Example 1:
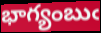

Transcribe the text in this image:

భాగ్యంబుఁ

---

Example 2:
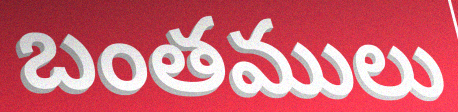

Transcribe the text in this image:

బంతములు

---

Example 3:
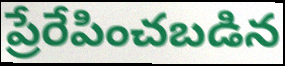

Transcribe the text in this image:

ప్రేరేపించబడిన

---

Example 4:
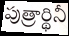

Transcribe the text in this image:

పుత్రార్థినీ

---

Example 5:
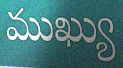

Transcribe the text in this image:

ముఖ్యు